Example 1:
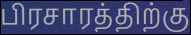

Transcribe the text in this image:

பிரசாரத்திற்கு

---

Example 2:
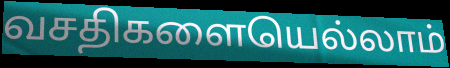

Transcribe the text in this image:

வசதிகளையெல்லாம்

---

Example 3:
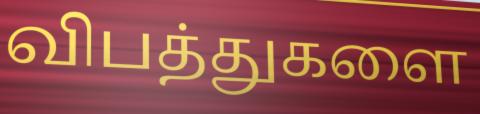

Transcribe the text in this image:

விபத்துகளை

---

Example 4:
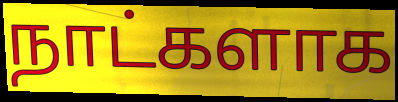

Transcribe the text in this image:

நாட்களாக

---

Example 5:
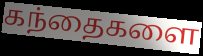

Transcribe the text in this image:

கந்தைகளை